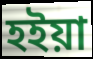
হইয়া